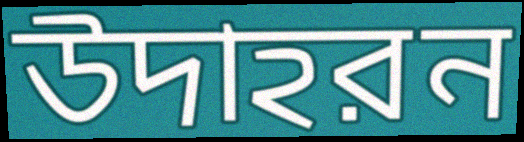
উদাহরন